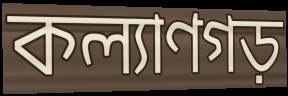
কল্যাণগড়